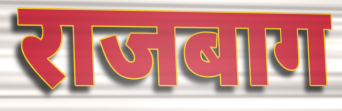
राजबाग